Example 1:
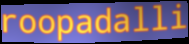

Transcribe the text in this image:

roopadalli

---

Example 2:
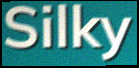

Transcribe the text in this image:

Silky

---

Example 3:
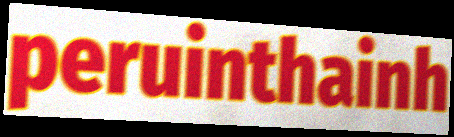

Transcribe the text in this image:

peruinthainh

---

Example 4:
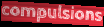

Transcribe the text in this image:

compulsions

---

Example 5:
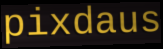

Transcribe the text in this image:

pixdaus